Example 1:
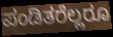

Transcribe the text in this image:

ಪಂಡಿತರೆಲ್ಲರೂ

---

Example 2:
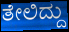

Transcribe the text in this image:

ತೇಲಿದ್ದು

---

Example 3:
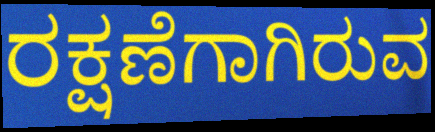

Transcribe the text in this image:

ರಕ್ಷಣೆಗಾಗಿರುವ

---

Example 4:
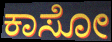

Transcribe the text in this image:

ಕಾಸೋ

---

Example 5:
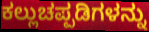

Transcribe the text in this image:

ಕಲ್ಲುಚಪ್ಪಡಿಗಳನ್ನು